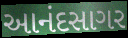
આનંદસાગર